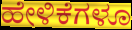
ಹೇಳಿಕೆಗಳೂ